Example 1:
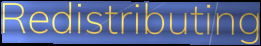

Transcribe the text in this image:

Redistributing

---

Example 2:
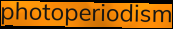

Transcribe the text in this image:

photoperiodism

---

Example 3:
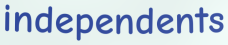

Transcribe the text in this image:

independents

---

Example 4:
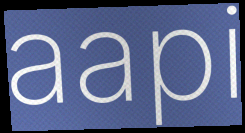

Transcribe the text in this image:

aapi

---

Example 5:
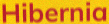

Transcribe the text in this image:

Hibernia